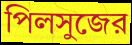
পিলসুজের